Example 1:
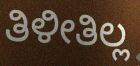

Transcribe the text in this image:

ತಿಳೀತಿಲ್ಲ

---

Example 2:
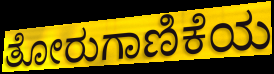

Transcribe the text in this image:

ತೋರುಗಾಣಿಕೆಯ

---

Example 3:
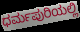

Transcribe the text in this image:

ಧರ್ಮಪುರಿಯಲ್ಲಿ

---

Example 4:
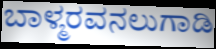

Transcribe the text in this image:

ಬಾಳ್ಮರವನಲುಗಾಡಿ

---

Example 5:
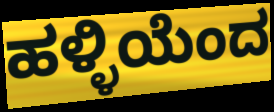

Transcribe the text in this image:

ಹಳ್ಳಿಯೆಂದ